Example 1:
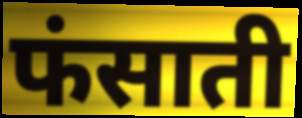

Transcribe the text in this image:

फंसाती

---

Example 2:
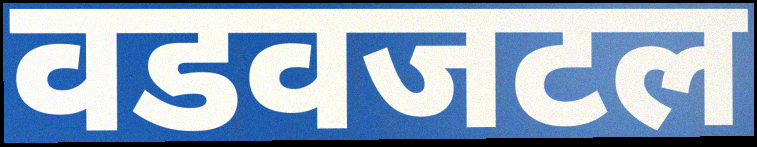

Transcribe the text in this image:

वडवजटल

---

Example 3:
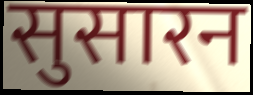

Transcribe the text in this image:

सुसारन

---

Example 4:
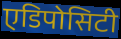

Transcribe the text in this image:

एडिपोसिटी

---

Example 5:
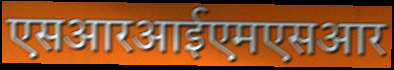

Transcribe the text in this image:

एसआरआईएमएसआर